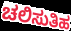
ಚಲಿಸುತಿಹ